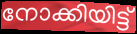
നോക്കിയിട്ട്